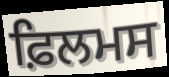
ਫ਼ਿਲਮਸ